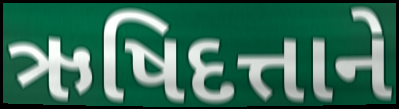
ઋષિદત્તાને